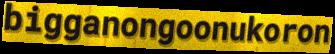
bigganongoonukoron